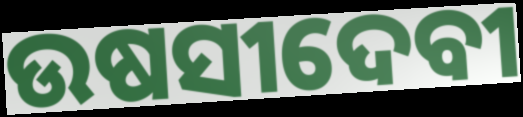
ଉଷସୀଦେବୀ